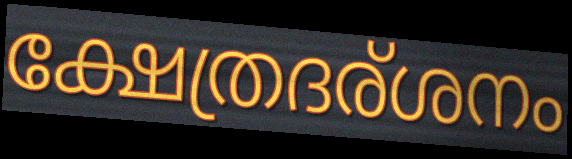
ക്ഷേത്രദര്ശനം